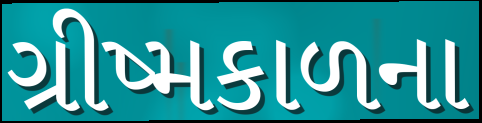
ગ્રીષ્મકાળના